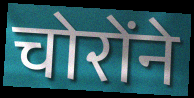
चोरोंने